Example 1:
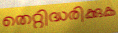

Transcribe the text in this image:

തെറ്റിദ്ധരിക്കുക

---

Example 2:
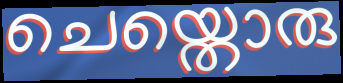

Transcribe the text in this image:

ചെയ്തൊരു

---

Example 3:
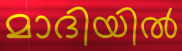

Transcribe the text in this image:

മാദിയിൽ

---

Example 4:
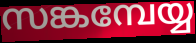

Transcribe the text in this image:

സങ്കമ്പേയ്യ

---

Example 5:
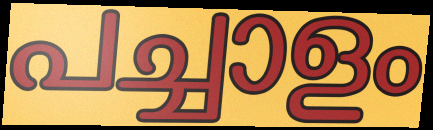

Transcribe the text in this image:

പച്ചാളം